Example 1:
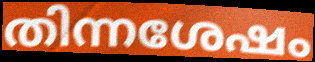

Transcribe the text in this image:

തിന്നശേഷം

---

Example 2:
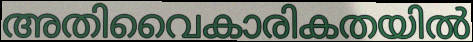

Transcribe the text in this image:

അതിവൈകാരികതയിൽ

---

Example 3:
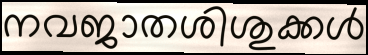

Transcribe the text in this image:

നവജാതശിശുക്കൾ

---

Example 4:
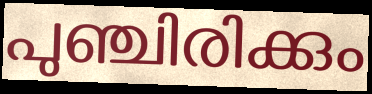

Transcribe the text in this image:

പുഞ്ചിരിക്കും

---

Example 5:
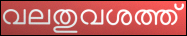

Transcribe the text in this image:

വലതുവശത്ത്